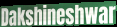
Dakshineshwar